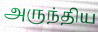
அருந்திய